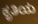
ಕೃತಿಯ